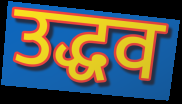
उद्धव